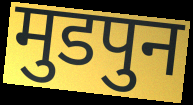
मुडपुन